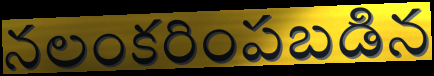
నలంకరింపబడిన